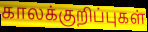
காலக்குறிப்புகள்